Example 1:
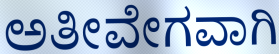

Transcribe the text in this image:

ಅತೀವೇಗವಾಗಿ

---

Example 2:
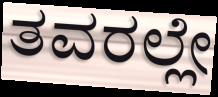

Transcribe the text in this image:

ತವರಲ್ಲೇ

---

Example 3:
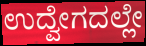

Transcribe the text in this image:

ಉದ್ವೇಗದಲ್ಲೇ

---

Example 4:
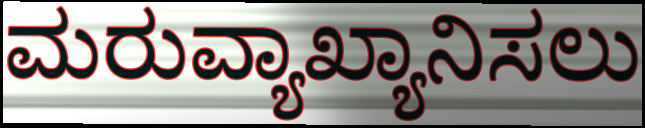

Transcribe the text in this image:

ಮರುವ್ಯಾಖ್ಯಾನಿಸಲು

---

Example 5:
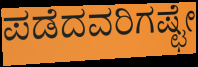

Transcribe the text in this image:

ಪಡೆದವರಿಗಷ್ಟೇ